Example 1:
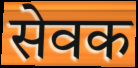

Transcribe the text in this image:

सेवक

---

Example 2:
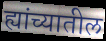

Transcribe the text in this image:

ह्यांच्यातील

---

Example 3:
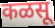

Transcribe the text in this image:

कळसू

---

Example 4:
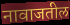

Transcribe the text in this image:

नावाजतील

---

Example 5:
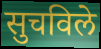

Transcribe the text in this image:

सुचविले